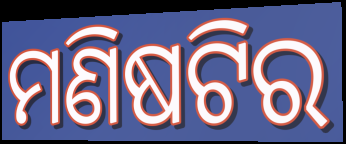
ମଣିଷଟିର